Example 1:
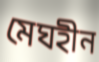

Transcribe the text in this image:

মেঘহীন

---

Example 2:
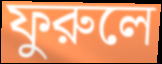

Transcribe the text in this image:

ফুরুলে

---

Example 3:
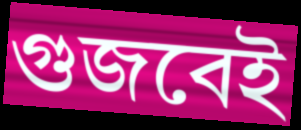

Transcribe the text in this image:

গুজবেই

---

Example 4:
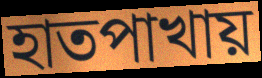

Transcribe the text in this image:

হাতপাখায়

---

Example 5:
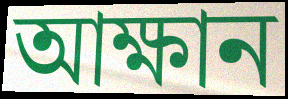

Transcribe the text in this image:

আক্ষান